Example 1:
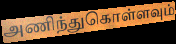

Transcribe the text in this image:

அணிந்துகொள்ளவும்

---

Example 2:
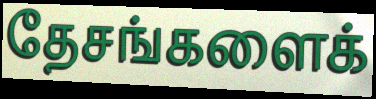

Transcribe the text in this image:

தேசங்களைக்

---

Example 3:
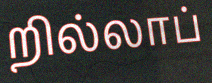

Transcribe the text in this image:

றில்லாப்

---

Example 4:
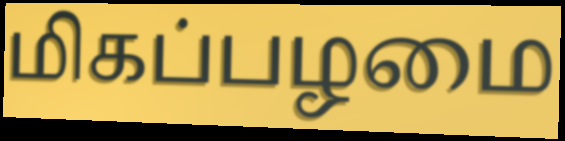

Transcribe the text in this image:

மிகப்பழமை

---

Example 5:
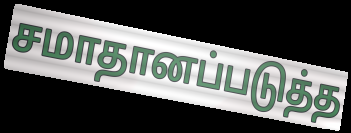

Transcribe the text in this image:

சமாதானப்படுத்த